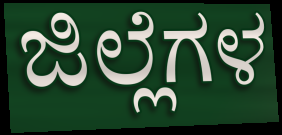
ಜಿಲ್ಲೆಗಳ